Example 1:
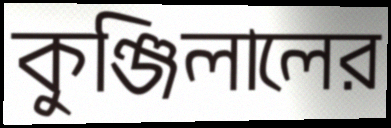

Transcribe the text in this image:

কুঞ্জিলালের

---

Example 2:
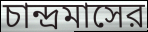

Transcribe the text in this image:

চান্দ্রমাসের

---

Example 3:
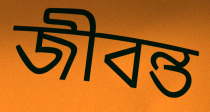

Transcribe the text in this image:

জীবন্ত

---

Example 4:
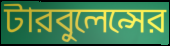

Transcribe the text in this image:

টারবুলেন্সের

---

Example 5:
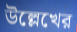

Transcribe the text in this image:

উল্লেখের